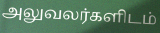
அலுவலர்களிடம்